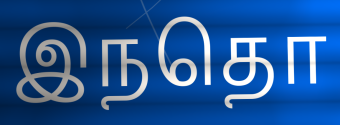
இநதொ